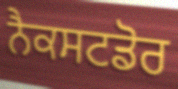
ਨੈਕਸਟਡੋਰ